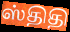
ஸ்திதி